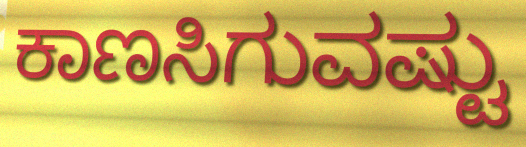
ಕಾಣಸಿಗುವಷ್ಟು